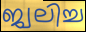
ജ്വലിച്ച